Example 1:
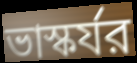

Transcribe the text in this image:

ভাস্কর্যর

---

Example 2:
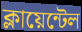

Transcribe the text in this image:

ক্লায়েন্টেল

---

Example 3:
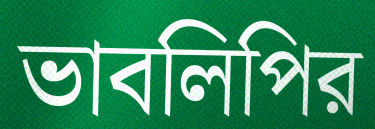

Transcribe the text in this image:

ভাবলিপির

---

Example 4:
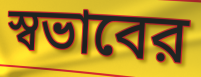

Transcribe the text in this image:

স্বভাবের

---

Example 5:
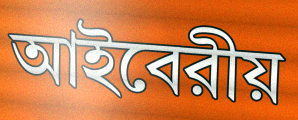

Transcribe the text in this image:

আইবেরীয়